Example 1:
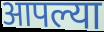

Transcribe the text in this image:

आपल्या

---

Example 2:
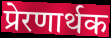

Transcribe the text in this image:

प्रेरणार्थक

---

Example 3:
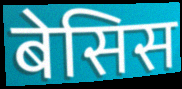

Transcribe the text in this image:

बेसिस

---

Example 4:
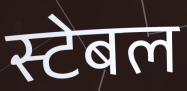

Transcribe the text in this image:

स्‍टेबल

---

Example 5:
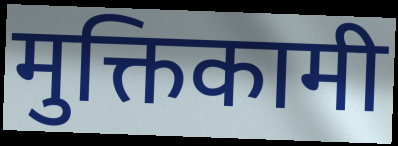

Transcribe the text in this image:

मुक्तिकामी